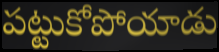
పట్టుకోపోయాడు